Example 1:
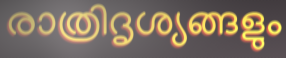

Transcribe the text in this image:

രാത്രിദൃശ്യങ്ങളും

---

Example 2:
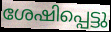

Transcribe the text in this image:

ശേഷിപ്പെട്ടു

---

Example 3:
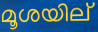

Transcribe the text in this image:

മൂശയില്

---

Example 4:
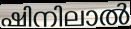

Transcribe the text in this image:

ഷിനിലാൽ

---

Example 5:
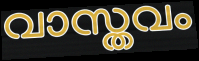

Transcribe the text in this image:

വാസ്തവം